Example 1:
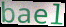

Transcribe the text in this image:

bael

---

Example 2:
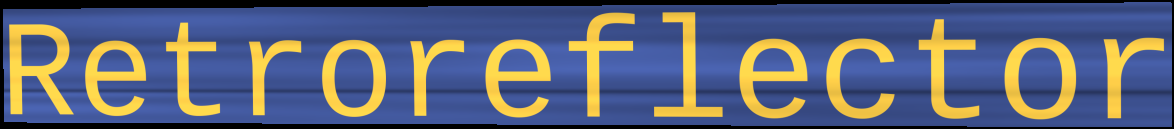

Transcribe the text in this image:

Retroreflector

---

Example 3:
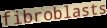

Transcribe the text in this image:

fibroblasts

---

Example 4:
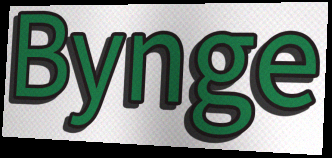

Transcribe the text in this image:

Bynge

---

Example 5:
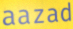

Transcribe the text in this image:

aazad